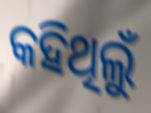
କହିଥିଲୁଁ